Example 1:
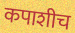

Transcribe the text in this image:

कपाशीच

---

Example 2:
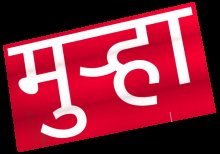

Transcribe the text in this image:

मुऱ्हा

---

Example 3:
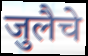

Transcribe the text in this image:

जुलैचे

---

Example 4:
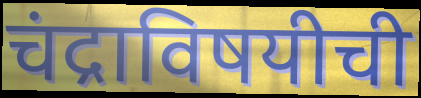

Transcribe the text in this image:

चंद्राविषयीची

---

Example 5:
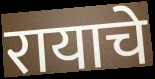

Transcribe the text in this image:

रायाचे